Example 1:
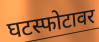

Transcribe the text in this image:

घटस्फोटावर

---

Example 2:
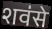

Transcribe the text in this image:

शव॑से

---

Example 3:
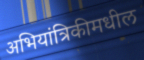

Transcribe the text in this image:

अभियांत्रिकीमधील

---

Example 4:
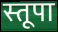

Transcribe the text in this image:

स्तूपा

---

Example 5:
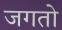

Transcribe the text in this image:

जगतो